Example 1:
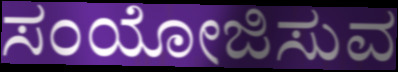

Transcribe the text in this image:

ಸಂಯೋಜಿಸುವ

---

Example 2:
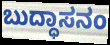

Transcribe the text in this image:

ಬುದ್ಧಾಸನಂ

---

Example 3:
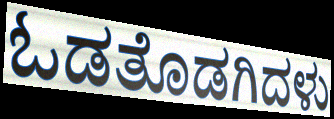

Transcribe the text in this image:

ಓಡತೊಡಗಿದಳು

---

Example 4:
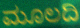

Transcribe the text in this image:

ಮೂಲದಿ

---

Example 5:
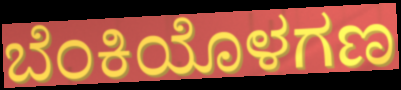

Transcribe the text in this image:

ಬೆಂಕಿಯೊಳಗಣ